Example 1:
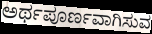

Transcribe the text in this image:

ಅರ್ಥಪೂರ್ಣವಾಗಿಸುವ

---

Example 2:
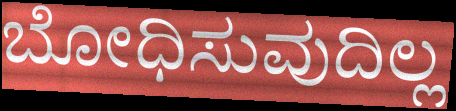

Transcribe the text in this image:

ಬೋಧಿಸುವುದಿಲ್ಲ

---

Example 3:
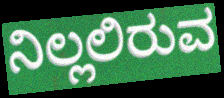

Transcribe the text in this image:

ನಿಲ್ಲಲಿರುವ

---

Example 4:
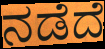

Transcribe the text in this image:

ನಡೆದೆ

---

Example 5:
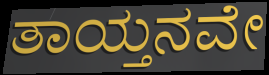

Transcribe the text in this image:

ತಾಯ್ತನವೇ